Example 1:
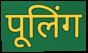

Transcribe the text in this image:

पूलिंग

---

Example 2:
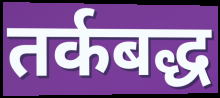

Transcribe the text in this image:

तर्कबद्ध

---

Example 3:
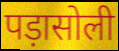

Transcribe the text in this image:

पड़ासोली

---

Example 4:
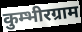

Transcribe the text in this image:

कुम्भीरग्राम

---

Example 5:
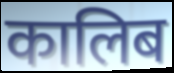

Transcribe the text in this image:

कालिब